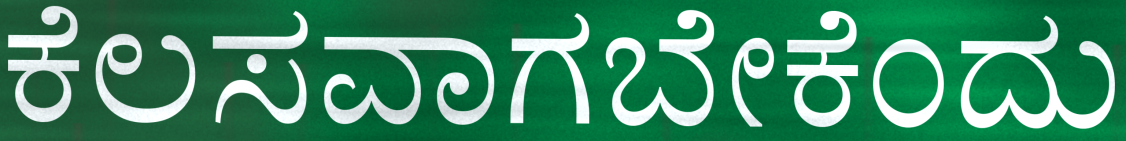
ಕೆಲಸವಾಗಬೇಕೆಂದು